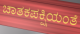
ಚಾತಕಪಕ್ಷಿಯಂತೆ